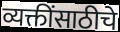
व्यक्तींसाठीचे